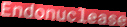
Endonuclease